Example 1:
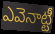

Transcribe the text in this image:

ఎవెనాట్టీ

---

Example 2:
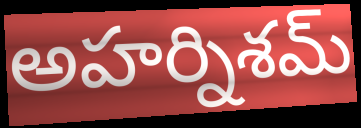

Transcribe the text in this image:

అహర్నిశమ్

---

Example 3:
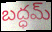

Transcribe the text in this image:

బద్ధమ్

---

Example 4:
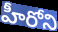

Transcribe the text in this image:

హీరోని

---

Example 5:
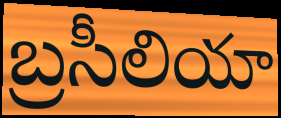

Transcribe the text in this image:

బ్రసీలియా